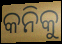
କନିକୁ